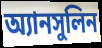
অ্যানসুলিন